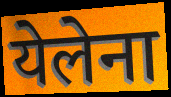
येलेना